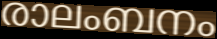
രാലംബനം